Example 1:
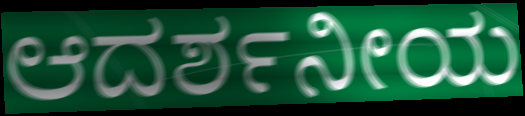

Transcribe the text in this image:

ಆದರ್ಶನೀಯ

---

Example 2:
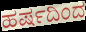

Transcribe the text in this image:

ಹರ್ಷದಿಂದ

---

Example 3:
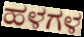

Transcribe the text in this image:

ಹಳಗಳ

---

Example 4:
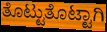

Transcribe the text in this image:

ತೊಟ್ಟುತೊಟ್ಟಾಗಿ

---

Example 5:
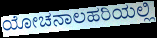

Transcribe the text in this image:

ಯೋಚನಾಲಹರಿಯಲ್ಲಿ